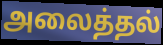
அலைத்தல்